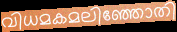
വിധമകമലിഞ്ഞോതി